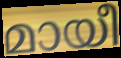
മായീ